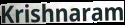
Krishnaram